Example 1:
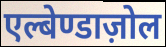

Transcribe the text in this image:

एल्बेण्डाज़ोल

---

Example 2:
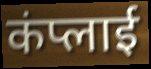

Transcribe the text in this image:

कंप्लाई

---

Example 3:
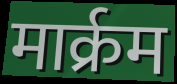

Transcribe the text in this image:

मार्क्रम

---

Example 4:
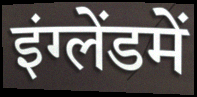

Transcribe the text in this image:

इंग्लेंडमें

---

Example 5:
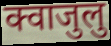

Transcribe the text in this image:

क्वाजुलु